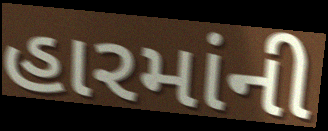
હારમાંની